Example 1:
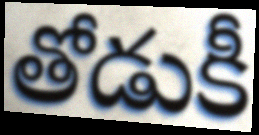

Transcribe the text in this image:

తోడుకీ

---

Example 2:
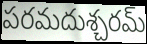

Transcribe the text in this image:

పరమదుశ్చరమ్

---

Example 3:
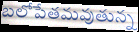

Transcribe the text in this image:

బలోపేతమవుతున్న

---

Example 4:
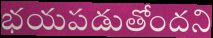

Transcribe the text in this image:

భయపడుతోందని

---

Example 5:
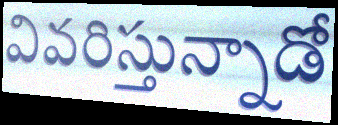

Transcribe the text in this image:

వివరిస్తున్నాడో